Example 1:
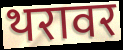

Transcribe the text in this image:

थरावर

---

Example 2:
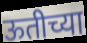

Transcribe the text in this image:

ऊतीच्या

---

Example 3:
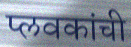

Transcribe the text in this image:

प्लवकांची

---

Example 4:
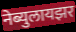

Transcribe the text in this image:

नेब्युलायझर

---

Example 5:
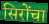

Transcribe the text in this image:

सिरोंचा